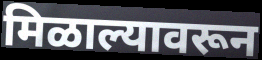
मिळाल्यावरून